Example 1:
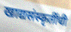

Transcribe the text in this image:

खाद्यसंस्कृतींची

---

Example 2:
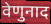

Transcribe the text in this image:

वेणुनाद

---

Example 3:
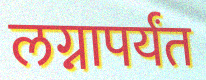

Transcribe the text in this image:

लग्नापर्यंत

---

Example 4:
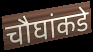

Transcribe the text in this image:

चौघांकडे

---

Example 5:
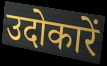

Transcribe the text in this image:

उदोकारें